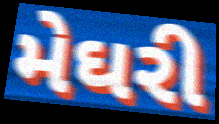
મેઘરી